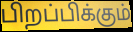
பிறப்பிக்கும்